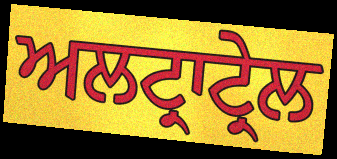
ਅਲਟ੍ਰਾਟ੍ਰੇਲ